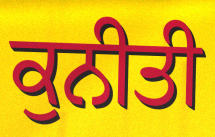
ਕੁਨੀਤੀ